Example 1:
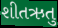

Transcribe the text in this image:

શીતઋતુ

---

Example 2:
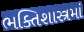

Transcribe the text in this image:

ભક્તિશાસ્ત્રમાં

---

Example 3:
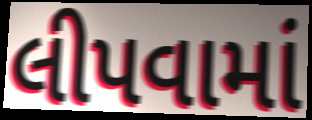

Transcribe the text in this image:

લીપવામાં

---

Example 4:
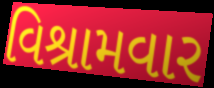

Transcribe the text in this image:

વિશ્રામવાર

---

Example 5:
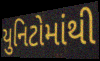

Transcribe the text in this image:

યુનિટોમાંથી